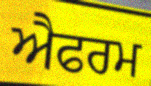
ਐਫਰਮ